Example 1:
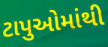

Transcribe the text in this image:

ટાપુઓમાંથી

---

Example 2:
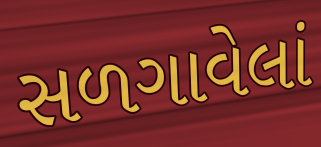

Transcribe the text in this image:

સળગાવેલાં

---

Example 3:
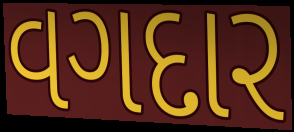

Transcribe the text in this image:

વગદાર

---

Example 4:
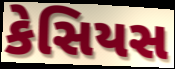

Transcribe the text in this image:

કેસિયસ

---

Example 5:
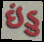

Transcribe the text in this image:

ઇંડુ